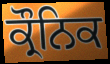
ਕ੍ਰੌਨਿਕ